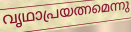
വൃഥാപ്രയത്നമെന്നു